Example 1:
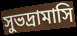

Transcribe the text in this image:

সুভদ্রামাসি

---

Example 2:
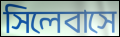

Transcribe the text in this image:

সিলেবাসে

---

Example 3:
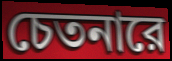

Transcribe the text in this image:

চেতনারে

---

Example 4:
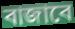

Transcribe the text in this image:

বাজাবে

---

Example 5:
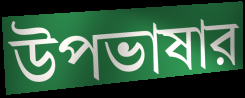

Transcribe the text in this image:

উপভাষার